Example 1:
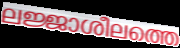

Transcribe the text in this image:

ലജ്ജാശീലത്തെ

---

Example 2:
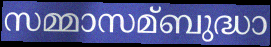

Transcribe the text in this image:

സമ്മാസമ്ബുദ്ധാ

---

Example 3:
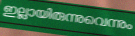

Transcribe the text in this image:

ഇല്ലായിരുന്നുവെന്നും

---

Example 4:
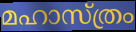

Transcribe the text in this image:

മഹാസ്ത്രം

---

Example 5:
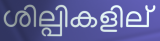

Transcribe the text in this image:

ശില്പികളില്